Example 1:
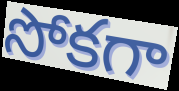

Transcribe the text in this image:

సోకగా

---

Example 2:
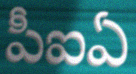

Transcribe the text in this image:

పీఐఏ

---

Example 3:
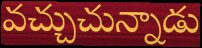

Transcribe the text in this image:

వచ్చుచున్నాడు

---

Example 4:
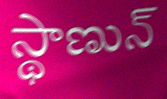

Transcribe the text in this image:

స్థాణున్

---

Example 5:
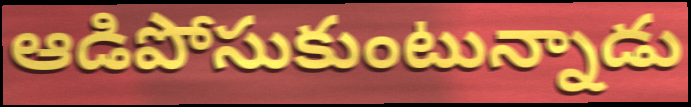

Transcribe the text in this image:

ఆడిపోసుకుంటున్నాడు